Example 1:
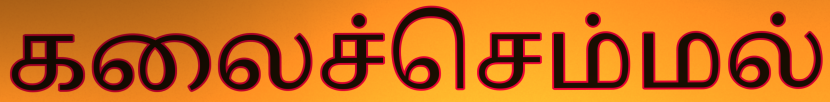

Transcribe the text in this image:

கலைச்செம்மல்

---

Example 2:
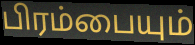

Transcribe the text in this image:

பிரம்பையும்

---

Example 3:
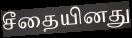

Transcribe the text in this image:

சீதையினது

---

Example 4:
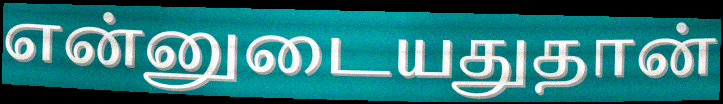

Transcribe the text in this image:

என்னுடையதுதான்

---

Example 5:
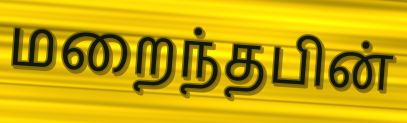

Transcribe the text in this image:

மறைந்தபின்